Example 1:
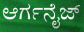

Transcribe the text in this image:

ಆರ್ಗನೈಜ್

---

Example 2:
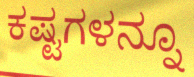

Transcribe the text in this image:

ಕಷ್ಟಗಳನ್ನೂ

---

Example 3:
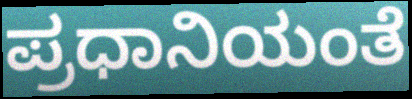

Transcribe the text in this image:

ಪ್ರಧಾನಿಯಂತೆ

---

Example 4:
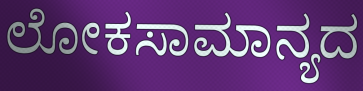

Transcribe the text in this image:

ಲೋಕಸಾಮಾನ್ಯದ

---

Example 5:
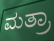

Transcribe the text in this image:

ಮತ್ರಾ